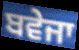
ਬਵੇਜਾ